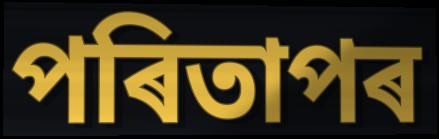
পৰিতাপৰ